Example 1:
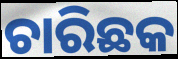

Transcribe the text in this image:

ଚାରିଛକ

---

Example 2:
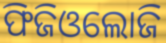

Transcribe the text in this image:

ଫିଜିଓଲୋଜି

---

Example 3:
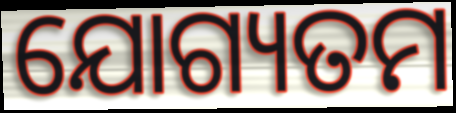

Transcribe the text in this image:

ଯୋଗ୍ୟତମ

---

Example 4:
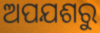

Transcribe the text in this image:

ଅପଯଶରୁ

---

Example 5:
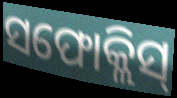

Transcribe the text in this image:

ସଫୋକ୍ଲିସ୍